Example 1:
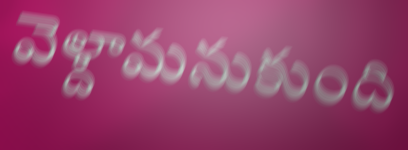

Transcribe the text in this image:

వెళ్దామనుకుంది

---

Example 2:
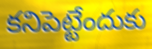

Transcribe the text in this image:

కనిపెట్టేందుకు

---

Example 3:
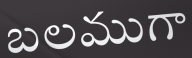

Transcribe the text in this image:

బలముగా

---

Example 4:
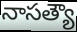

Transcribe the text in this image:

నాసత్యౌ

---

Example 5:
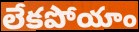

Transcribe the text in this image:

లేకపోయాం